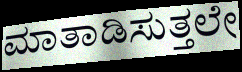
ಮಾತಾಡಿಸುತ್ತಲೇ